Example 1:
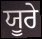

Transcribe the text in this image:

ਯੂਰੇ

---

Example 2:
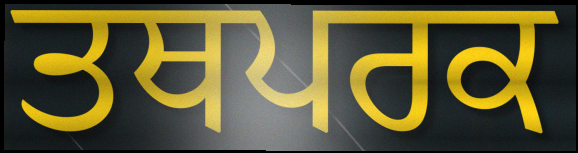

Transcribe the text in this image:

ਤਥਪਰਕ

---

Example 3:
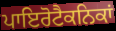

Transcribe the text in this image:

ਪਾਇਰੋਟੈਕਨਿਕਾਂ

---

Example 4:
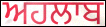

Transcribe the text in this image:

ਅਹਲਾਬ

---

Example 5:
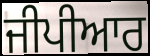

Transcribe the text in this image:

ਜੀਪੀਆਰ